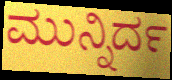
ಮುನ್ನಿರ್ದ